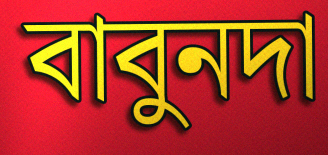
বাবুনদা